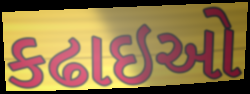
કઢાઇઓ